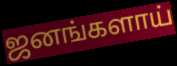
ஜனங்களாய்